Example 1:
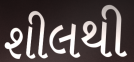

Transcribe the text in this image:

શીલથી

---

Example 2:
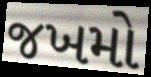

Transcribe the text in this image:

જખમો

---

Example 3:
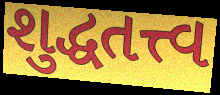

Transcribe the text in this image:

શુદ્ધતત્ત્વ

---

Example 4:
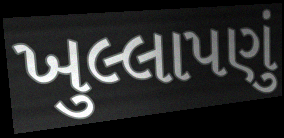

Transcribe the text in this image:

ખુલ્લાપણું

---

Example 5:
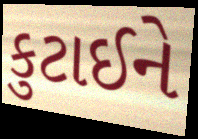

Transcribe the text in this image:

કુટાઈને